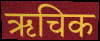
ऋचिक